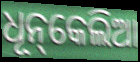
ଧୂନ୍‌କେଲିଆ